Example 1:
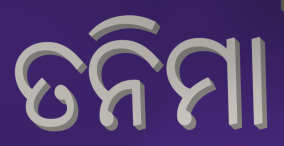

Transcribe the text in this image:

ତନିମା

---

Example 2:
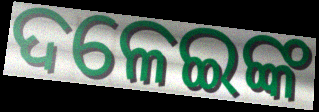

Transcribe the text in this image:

ଦଳେଇଙ୍କ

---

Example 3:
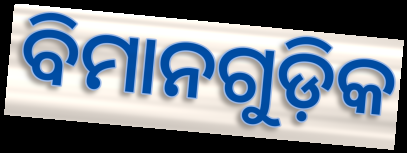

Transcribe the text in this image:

ବିମାନଗୁଡ଼ିକ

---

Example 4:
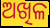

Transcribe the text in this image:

ଅଖିଳ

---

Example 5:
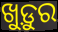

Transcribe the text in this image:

ଖୁଡ଼ୁର